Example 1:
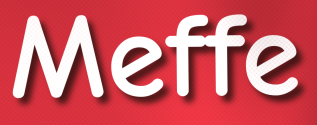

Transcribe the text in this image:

Meffe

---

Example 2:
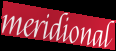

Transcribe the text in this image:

meridional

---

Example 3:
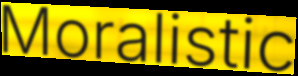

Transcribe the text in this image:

Moralistic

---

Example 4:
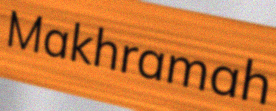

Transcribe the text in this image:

Makhramah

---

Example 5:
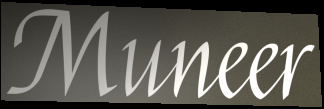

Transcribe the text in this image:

Muneer